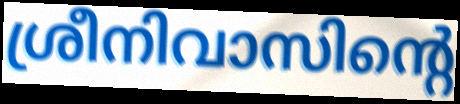
ശ്രീനിവാസിന്റെ